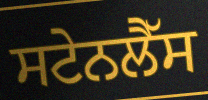
ਸਟੇਨਲੈੱਸ